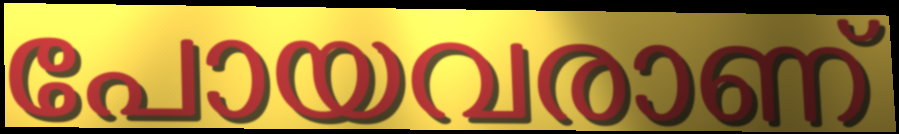
പോയവരാണ്